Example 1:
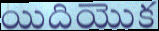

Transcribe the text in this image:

యిదియొక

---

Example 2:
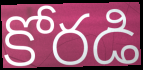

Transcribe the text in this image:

కోరడి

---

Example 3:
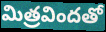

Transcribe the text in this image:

మిత్రవిందతో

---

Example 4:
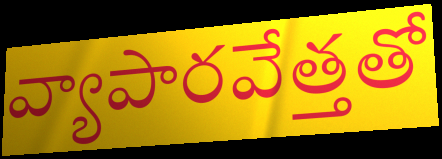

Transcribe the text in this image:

వ్యాపారవేత్తతో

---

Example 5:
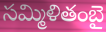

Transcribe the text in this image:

సమ్మిళితంబై